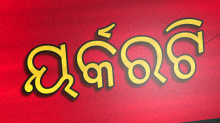
ୟର୍କରଟି